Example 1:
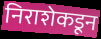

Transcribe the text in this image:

निराशेकडून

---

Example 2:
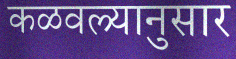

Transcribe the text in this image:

कळवल्यानुसार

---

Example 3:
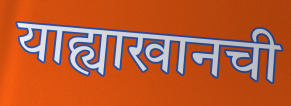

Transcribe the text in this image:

याह्याखानची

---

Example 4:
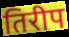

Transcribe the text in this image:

तिरीप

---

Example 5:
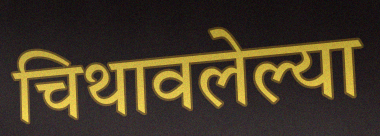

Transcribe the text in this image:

चिथावलेल्या